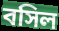
বসিল